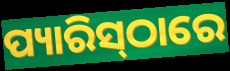
ପ୍ୟାରିସ୍‍ଠାରେ